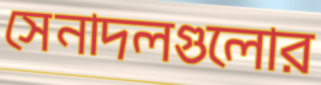
সেনাদলগুলোর